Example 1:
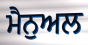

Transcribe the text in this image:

ਮੈਨੁਅਲ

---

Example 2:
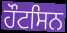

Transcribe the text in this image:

ਹੌਟਸਿਨ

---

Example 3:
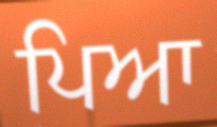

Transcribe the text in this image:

ਪਿਆ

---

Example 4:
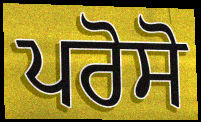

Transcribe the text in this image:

ਪਰੋਸੋ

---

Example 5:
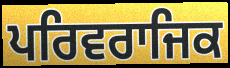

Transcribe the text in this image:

ਪਰਿਵਰਾਜਿਕ